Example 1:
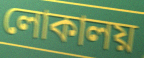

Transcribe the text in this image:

লোকালয়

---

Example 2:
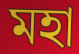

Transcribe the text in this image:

মহা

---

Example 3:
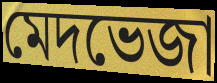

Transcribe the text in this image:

মেদভেজা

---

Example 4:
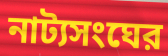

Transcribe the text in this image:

নাট্যসংঘের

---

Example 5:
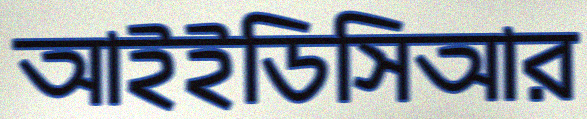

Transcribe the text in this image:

আইইডিসিআর